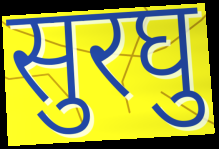
सुरघु